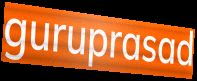
guruprasad